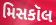
મિસકૉલ